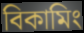
বিকামিং